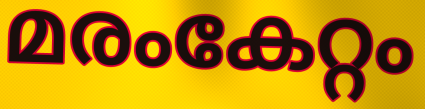
മരംകേറ്റം